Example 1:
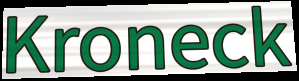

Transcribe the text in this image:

Kroneck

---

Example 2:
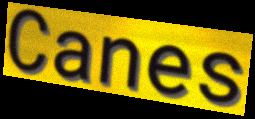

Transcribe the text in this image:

Canes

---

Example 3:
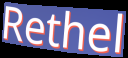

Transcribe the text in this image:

Rethel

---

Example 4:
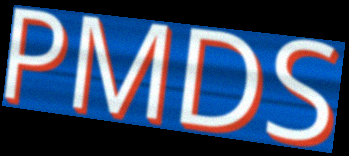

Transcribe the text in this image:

PMDS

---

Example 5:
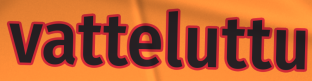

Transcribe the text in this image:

vatteluttu